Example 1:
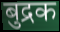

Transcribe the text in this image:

बुद्रक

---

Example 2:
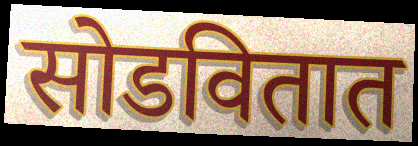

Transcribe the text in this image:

सोडवितात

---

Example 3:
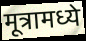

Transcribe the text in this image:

मूत्रामध्ये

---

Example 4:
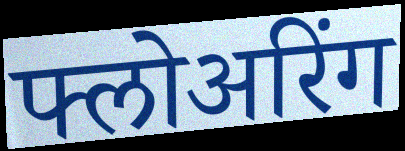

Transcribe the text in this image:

फ्लोअरिंग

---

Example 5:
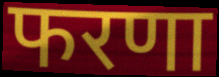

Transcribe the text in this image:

फरणा